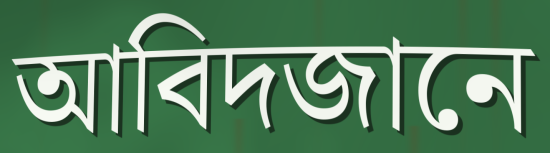
আবিদজানে